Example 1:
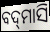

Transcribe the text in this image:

ବଦ୍‌ମାସି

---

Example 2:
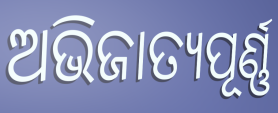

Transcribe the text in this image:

ଅଭିଜାତ୍ୟପୂର୍ଣ୍ଣ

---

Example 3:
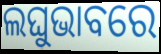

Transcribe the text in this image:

ଲଘୁଭାବରେ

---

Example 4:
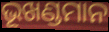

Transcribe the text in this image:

ଭୂଖଣ୍ଡମାନ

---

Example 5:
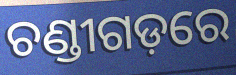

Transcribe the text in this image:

ଚଣ୍ଡୀଗଡ଼ରେ